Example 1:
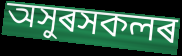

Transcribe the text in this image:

অসুৰসকলৰ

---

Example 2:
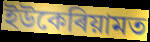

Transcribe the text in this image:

ইউকেৰিয়ামত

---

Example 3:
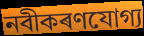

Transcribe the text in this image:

নবীকৰণযোগ্য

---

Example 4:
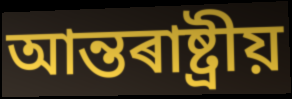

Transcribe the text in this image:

আন্তৰাষ্ট্ৰীয়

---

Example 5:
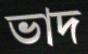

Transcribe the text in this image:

ভাদ